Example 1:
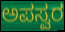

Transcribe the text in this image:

ಅಪಸ್ವರ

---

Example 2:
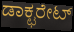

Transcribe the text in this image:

ಡಾಕ್ಟರೇಟ್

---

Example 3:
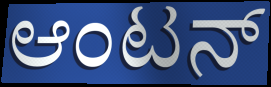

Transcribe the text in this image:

ಆಂಟನ್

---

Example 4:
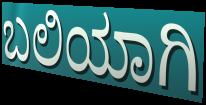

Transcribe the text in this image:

ಬಲಿಯಾಗಿ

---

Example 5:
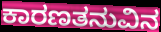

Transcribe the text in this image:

ಕಾರಣತನುವಿನ